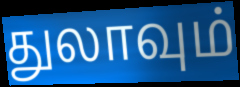
துலாவும்